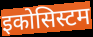
इकोसिस्टम